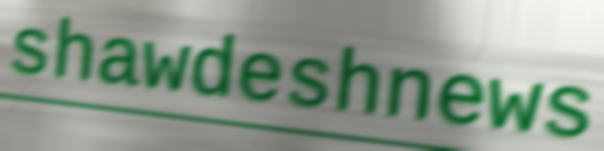
shawdeshnews